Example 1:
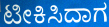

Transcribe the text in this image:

ಟೀಕಿಸಿದಾಗ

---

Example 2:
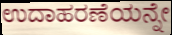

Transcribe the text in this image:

ಉದಾಹರಣೆಯನ್ನೇ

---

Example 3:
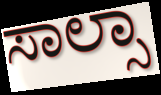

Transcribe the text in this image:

ಸಾಲ್ಸಾ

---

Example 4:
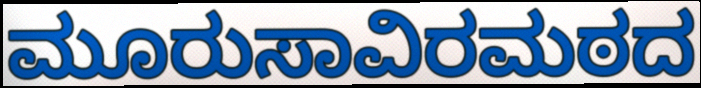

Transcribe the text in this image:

ಮೂರುಸಾವಿರಮಠದ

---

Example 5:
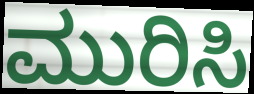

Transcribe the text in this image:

ಮುರಿಸಿ